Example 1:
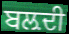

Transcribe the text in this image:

ਬਲ਼ਦੀ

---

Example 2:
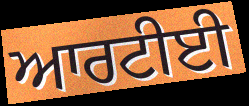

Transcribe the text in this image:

ਆਰਟੀਈ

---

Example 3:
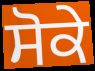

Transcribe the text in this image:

ਸੋਕੇ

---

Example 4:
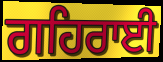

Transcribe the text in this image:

ਗਹਿਰਾਈ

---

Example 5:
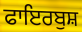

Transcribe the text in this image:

ਫਾਇਰਬੁਸ਼